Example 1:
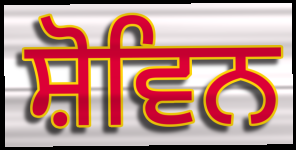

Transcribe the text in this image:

ਸ਼ੋਵਿਨ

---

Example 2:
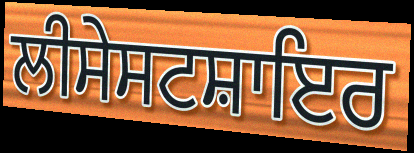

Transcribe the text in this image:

ਲੀਸੇਸਟਸ਼ਾਇਰ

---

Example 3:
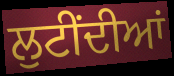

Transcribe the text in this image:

ਲੁਟੀਂਦੀਆਂ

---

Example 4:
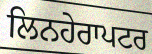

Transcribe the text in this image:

ਲਿਨਹੇਰਾਪਟਰ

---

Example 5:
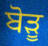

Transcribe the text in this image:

ਬੋੜੂ